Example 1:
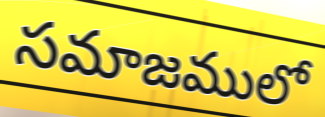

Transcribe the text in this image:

సమాజములో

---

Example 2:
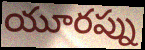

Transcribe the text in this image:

యూరప్ను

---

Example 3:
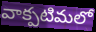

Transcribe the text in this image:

వాక్పటిమలో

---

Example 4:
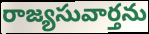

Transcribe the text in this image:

రాజ్యసువార్తను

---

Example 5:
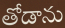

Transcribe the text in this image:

తోడాను